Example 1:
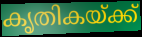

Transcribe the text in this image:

കൃതികയ്ക്ക്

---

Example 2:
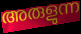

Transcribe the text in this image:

അരുളുന്ന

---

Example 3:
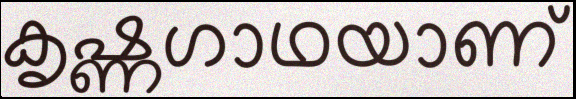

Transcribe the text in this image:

കൃഷ്ണഗാഥയാണ്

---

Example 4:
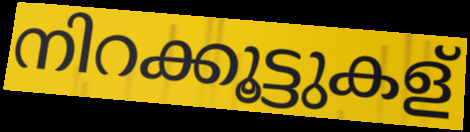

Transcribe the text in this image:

നിറക്കൂട്ടുകള്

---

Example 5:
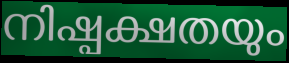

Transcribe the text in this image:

നിഷ്പക്ഷതയും